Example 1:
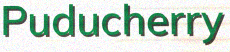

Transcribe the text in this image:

Puducherry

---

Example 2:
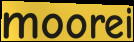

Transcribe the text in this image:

moorei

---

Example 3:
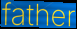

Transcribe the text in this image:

father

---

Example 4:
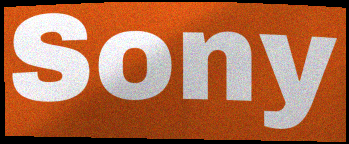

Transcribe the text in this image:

Sony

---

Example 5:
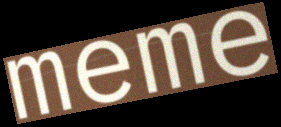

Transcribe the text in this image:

meme